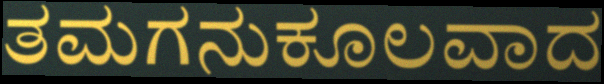
ತಮಗನುಕೂಲವಾದ